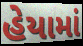
હેયામાં